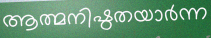
ആത്മനിഷ്ഠതയാർന്ന